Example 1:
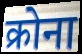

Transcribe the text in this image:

क्रोना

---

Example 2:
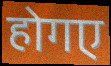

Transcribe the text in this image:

होगए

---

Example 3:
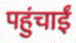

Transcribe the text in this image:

पहुंचाईं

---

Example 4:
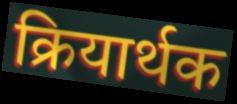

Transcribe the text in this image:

क्रियार्थक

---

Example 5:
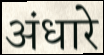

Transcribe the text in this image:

अंधारे